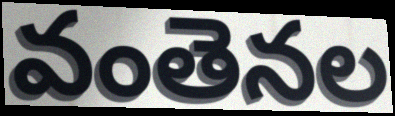
వంతెనల